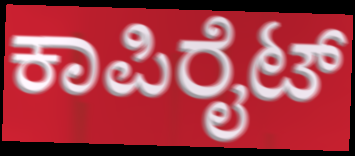
ಕಾಪಿರೈಟ್